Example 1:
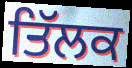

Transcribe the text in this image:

ਤਿੱਲਕ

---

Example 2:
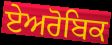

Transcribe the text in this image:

ਏਅਰੋਬਿਕ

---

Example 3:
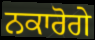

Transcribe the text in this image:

ਨਕਾਰੋਗੇ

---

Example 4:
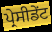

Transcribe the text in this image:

ਪ੍ਰੇਸੀਡੇਂਟ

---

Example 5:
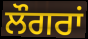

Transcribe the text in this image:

ਲੌਗਰਾਂ